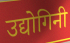
उद्योगिनी